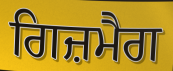
ਗਿਜ਼ਮੈਗ